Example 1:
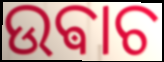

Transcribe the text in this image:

ଉଵାଚ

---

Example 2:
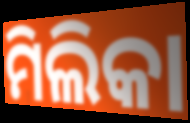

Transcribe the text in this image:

ମିଲିକା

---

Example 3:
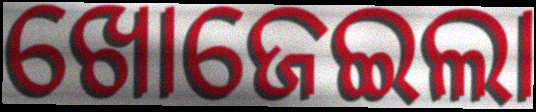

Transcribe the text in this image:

ଖୋଜେଇଲା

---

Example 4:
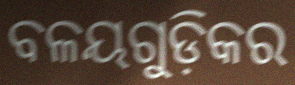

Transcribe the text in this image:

ବଳୟଗୁଡ଼ିକର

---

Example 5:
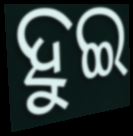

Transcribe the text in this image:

ହୁଇ